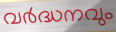
വർദ്ധനവും